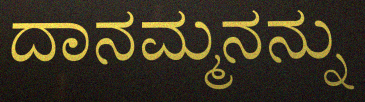
ದಾನಮ್ಮನನ್ನು